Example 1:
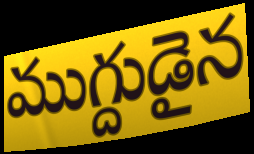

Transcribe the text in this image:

ముగ్దుడైన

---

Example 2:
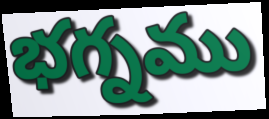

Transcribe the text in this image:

భగ్నము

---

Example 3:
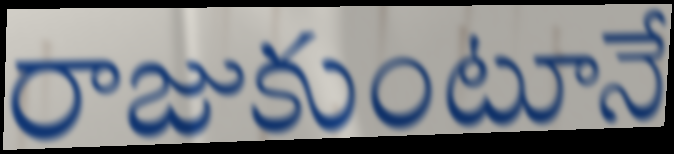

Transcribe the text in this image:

రాజుకుంటూనే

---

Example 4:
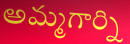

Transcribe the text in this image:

అమ్మగార్ని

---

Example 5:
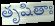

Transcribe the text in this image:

తృషితాః